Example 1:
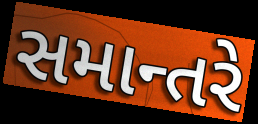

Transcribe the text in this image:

સમાન્તરે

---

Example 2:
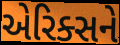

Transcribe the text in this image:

એરિક્સને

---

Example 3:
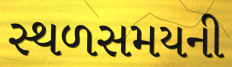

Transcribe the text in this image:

સ્થળસમયની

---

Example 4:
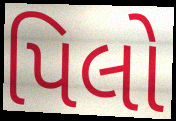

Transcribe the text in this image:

પિલો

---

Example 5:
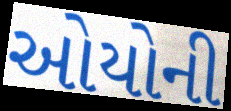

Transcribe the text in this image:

ઓયોની